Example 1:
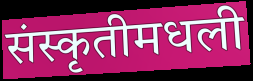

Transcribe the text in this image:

संस्कृतीमधली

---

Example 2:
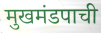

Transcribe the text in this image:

मुखमंडपाची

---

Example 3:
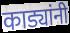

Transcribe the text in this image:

काड्यांनी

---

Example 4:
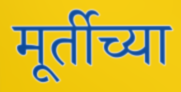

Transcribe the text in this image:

मूर्तीच्या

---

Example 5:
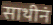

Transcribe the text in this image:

साथीनं